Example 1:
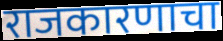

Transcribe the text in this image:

राजकारणाचा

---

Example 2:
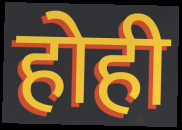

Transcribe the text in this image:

होही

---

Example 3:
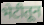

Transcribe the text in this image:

भेटीतून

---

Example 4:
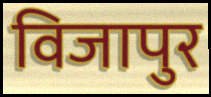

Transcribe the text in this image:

विजापुर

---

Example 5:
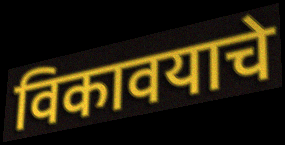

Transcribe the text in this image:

विकावयाचे